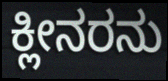
ಕ್ಲೀನರನು